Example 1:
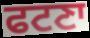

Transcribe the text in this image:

ਫਟਣਾ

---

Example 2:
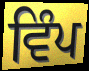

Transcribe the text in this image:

ਵਿੰਪ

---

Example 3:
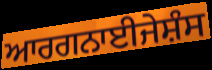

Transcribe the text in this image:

ਆਰਗਨਾਈਜੇਸ਼ੰਸ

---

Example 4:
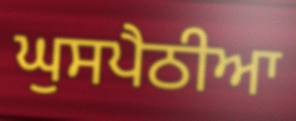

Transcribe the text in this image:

ਘੁਸਪੈਠੀਆ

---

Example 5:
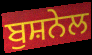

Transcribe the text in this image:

ਬੁਸ਼ਨੇਲ